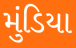
મુંડિયા